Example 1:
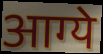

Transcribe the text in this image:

आग्ये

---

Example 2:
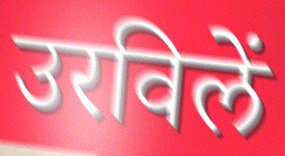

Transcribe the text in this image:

उरविलें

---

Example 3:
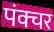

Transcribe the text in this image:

पंक्चर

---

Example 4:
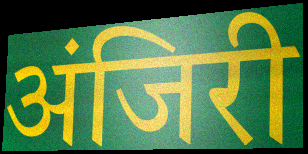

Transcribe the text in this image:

अंजिरी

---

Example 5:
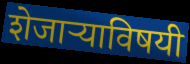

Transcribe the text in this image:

शेजाऱ्याविषयी